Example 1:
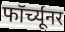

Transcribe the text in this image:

फॉर्च्यूनर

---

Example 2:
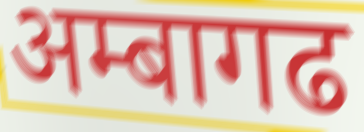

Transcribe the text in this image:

अम्बागढ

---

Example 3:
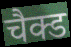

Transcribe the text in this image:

चैक्ड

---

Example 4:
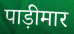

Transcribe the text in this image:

पाड़ीमार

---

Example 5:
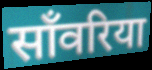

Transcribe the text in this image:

साँवरिया